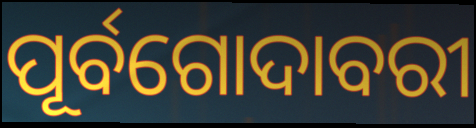
ପୂର୍ବଗୋଦାବରୀ